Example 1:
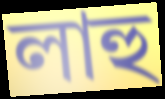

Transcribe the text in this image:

লাহু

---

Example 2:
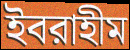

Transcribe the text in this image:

ইবরাহীম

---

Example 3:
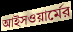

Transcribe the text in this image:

আইসওয়ার্মের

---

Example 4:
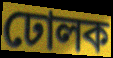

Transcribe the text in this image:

ঢোলক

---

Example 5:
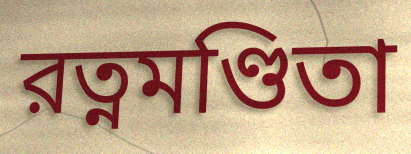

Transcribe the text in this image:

রত্নমণ্ডিতা